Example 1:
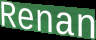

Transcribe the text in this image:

Renan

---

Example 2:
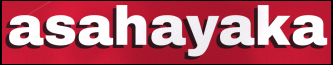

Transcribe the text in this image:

asahayaka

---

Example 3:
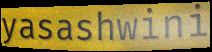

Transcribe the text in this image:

yasashwini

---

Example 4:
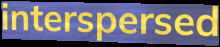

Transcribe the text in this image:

interspersed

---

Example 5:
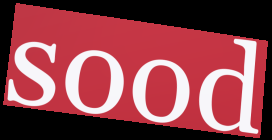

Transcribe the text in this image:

sood